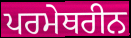
ਪਰਮੇਥਰੀਨ